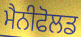
ਮੈਨੀਫੋਲਡ